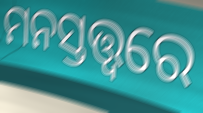
ମନସ୍ତତ୍ତ୍ଵରେ